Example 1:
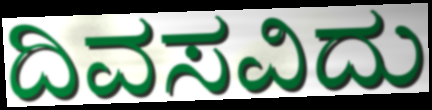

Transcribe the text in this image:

ದಿವಸವಿದು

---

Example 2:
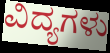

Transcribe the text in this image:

ವಿದ್ಯಗಳು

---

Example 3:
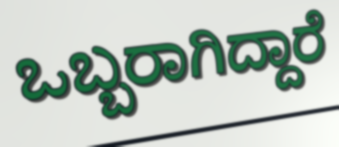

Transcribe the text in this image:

ಒಬ್ಬರಾಗಿದ್ದಾರೆ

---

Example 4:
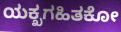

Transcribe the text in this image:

ಯಕ್ಖಗಹಿತಕೋ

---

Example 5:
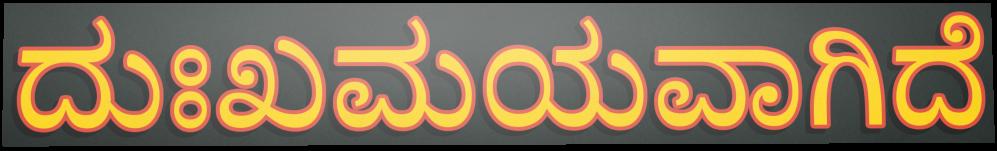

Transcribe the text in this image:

ದುಃಖಮಯವಾಗಿದೆ